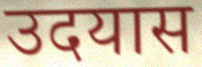
उदयास